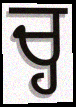
ਚ੍ਹ